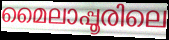
മൈലാപ്പൂരിലെ